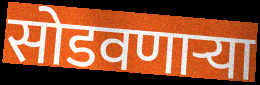
सोडवणाऱ्या